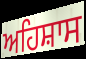
ਅਹਿਸ਼ਾਸ